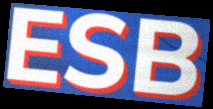
ESB